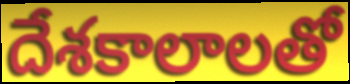
దేశకాలాలతో